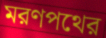
মরণপথের